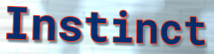
Instinct